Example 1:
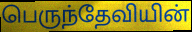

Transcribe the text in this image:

பெருந்தேவியின்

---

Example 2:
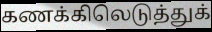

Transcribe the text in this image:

கணக்கிலெடுத்துக்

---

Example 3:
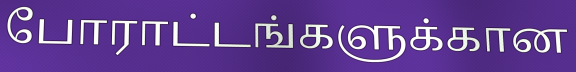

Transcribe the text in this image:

போராட்டங்களுக்கான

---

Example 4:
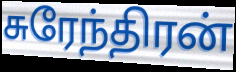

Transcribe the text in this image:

சுரேந்திரன்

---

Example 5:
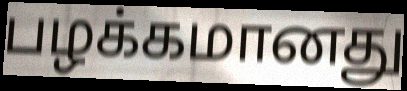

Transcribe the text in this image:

பழக்கமானது